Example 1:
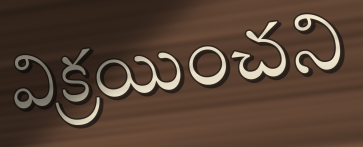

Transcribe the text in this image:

విక్రయించని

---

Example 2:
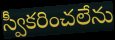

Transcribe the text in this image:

స్వీకరించలేను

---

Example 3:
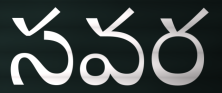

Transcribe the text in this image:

సవర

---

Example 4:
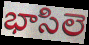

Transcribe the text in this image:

భాసిలె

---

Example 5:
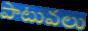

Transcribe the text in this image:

పాటువలు